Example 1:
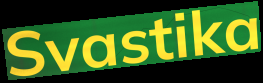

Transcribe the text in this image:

Svastika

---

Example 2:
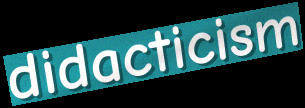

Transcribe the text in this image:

didacticism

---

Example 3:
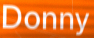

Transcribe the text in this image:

Donny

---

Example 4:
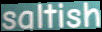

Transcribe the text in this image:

saltish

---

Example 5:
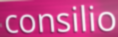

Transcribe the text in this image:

consilio